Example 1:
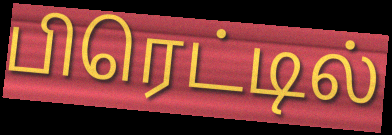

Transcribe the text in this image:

பிரெட்டில்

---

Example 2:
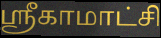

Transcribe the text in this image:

ஸ்ரீகாமாட்சி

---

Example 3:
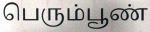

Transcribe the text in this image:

பெரும்பூண்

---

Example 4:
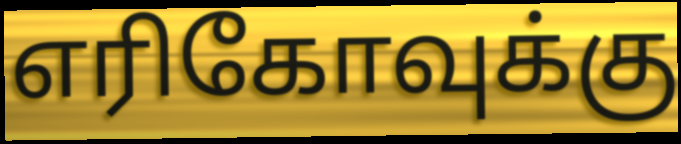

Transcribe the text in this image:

எரிகோவுக்கு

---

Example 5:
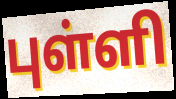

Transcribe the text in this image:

புள்ளி